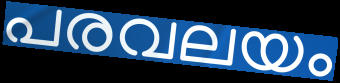
പരവലയം